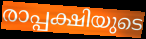
രാപ്പക്ഷിയുടെ